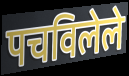
पचविलेले